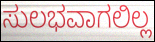
ಸುಲಭವಾಗಲಿಲ್ಲ